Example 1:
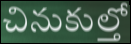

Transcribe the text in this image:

చినుకుల్తో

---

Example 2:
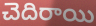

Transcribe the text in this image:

చెదిరాయి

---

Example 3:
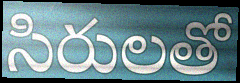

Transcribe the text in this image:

సిరులతో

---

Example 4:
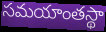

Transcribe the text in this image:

సమయాంతస్థా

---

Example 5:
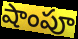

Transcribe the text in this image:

షాంపూ